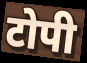
टोपी